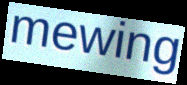
mewing